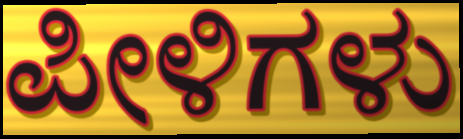
ಪೀಳಿಗಳು